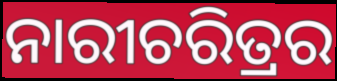
ନାରୀଚରିତ୍ରର